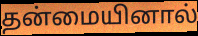
தன்மையினால்